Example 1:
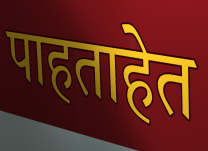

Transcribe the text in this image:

पाहताहेत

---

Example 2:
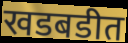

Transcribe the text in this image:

खडबडीत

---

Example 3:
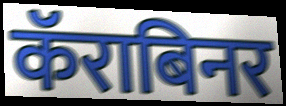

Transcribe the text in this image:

कॅराबिनर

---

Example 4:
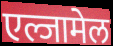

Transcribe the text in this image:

एल्जामेल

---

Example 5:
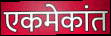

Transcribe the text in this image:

एकमेकांत